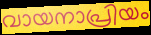
വായനാപ്രിയം